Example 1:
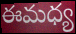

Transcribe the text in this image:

ఈమధ్య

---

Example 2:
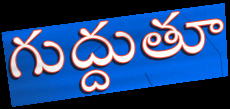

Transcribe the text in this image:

గుద్దుతూ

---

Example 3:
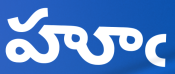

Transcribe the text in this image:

హూఁ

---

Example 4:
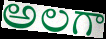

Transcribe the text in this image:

అలగా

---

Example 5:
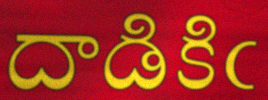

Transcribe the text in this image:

దాడికిఁ